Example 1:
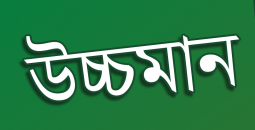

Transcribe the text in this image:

উচ্চমান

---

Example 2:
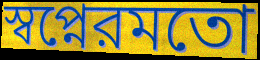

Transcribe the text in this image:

স্বপ্নেরমতো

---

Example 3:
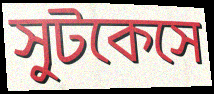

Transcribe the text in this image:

সুটকেসে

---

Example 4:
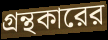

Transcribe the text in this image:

গ্রন্থকারের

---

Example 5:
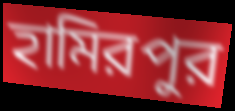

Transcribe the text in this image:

হামিরপুর